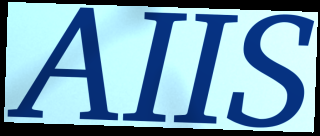
AIIS